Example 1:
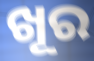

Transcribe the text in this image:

ଖୂର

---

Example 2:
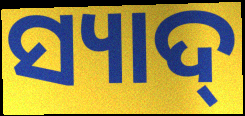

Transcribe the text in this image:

ସ୍ୟାଦ୍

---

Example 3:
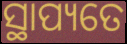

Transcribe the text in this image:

ସ୍ଥାପ୍ୟତେ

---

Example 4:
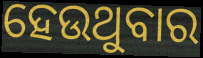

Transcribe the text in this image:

ହେଉଥୁବାର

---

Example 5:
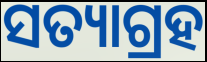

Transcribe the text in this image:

ସତ୍ୟାଗ୍ରହ